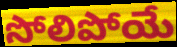
సోలిపోయే